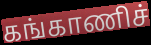
கங்காணிச்